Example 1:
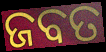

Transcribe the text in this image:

ଜବତ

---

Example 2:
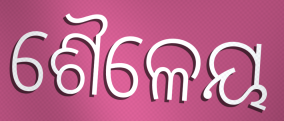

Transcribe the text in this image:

ଶୈଳେୟ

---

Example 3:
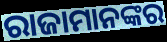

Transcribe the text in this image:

ରାଜାମାନଙ୍କର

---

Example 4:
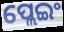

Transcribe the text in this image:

ପ୍ଲେଇଂ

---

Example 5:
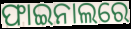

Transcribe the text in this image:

ଫାଇନାଲରେ